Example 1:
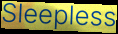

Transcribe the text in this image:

Sleepless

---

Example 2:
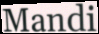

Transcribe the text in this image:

Mandi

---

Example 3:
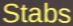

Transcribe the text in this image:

Stabs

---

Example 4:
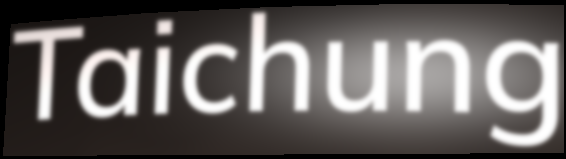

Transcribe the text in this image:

Taichung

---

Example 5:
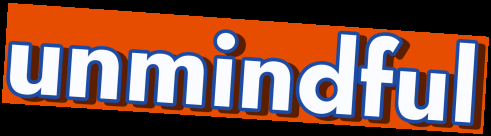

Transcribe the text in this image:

unmindful